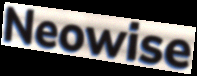
Neowise